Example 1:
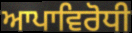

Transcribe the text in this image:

ਆਪਾਵਿਰੋਧੀ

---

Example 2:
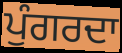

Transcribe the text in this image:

ਪੁੰਗਰਦਾ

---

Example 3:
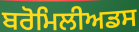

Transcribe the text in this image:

ਬਰੋਮਿਲੀਅਡਸ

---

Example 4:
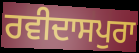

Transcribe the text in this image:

ਰਵੀਦਾਸਪੁਰਾ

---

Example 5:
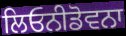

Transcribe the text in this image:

ਲਿਓਨੀਡੋਵਨਾ